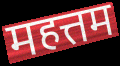
महत्तम